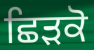
ਛਿੜਕੋ